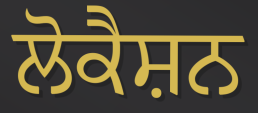
ਲੋਕੈਸ਼ਨ